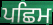
ਪਛਿਮ